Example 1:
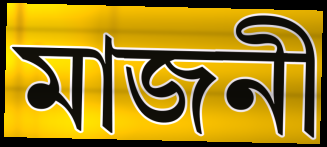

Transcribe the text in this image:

মাজনী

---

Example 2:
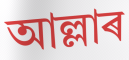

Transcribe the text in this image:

আল্লাৰ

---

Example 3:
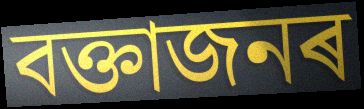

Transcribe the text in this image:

বক্তাজনৰ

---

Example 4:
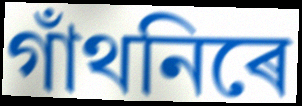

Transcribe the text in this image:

গাঁথনিৰে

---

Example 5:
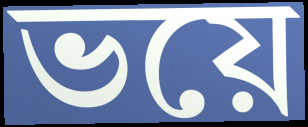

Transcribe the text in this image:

ভয়ে